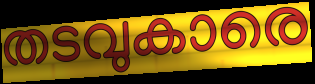
തടവുകാരെ